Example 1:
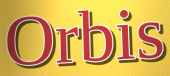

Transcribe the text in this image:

Orbis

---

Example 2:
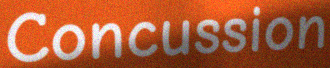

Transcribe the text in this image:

Concussion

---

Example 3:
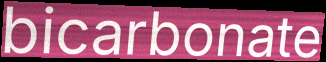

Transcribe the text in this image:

bicarbonate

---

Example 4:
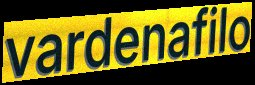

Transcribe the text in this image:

vardenafilo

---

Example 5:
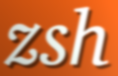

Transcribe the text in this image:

zsh